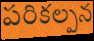
పరికల్పన